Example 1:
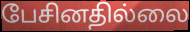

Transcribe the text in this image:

பேசினதில்லை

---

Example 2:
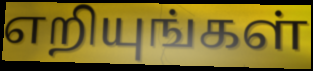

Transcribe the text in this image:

எறியுங்கள்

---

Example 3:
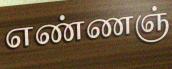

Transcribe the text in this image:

எண்ணஞ்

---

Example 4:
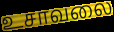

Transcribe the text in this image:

உசாவலை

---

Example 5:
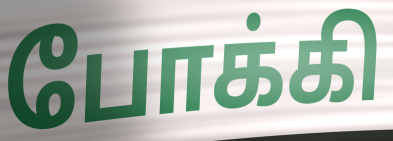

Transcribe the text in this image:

போக்கி